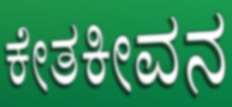
ಕೇತಕೀವನ